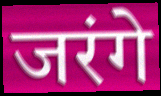
जरंगे